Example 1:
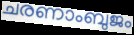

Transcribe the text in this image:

ചരണാംബുജം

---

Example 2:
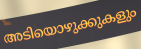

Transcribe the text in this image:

അടിയൊഴുക്കുകളും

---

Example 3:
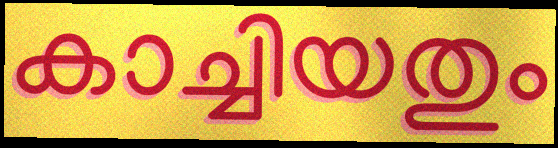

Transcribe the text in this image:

കാച്ചിയതും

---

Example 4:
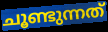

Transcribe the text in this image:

ചൂണ്ടുന്നത്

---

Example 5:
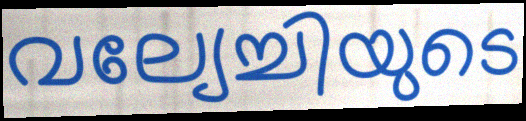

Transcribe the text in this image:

വല്യേച്ചിയുടെ